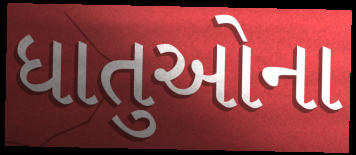
ધાતુઓના